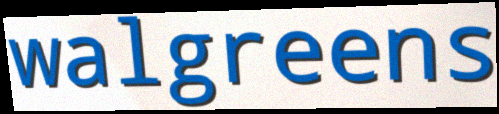
walgreens